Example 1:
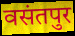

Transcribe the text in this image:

वसंतपुर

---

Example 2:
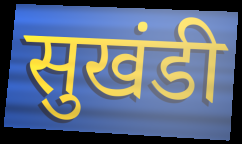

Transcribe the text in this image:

सुखंडी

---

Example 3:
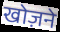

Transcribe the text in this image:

खोज़ने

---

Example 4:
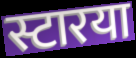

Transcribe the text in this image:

स्टारया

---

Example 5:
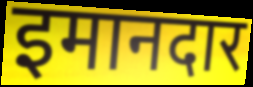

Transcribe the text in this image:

इमानदार